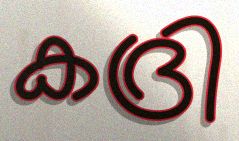
കദ്രി